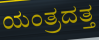
ಯಂತ್ರದತ್ತ